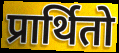
प्रार्थितो